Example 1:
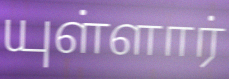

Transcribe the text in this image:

யுள்ளார்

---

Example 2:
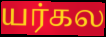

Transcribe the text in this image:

யர்கல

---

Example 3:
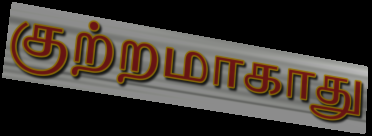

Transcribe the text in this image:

குற்றமாகாது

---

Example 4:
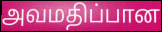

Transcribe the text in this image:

அவமதிப்பான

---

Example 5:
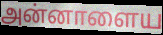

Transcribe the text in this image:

அன்னாளைய